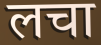
लचा